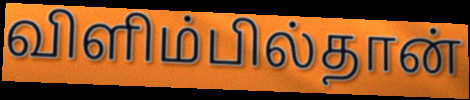
விளிம்பில்தான்